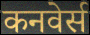
कनवेर्स